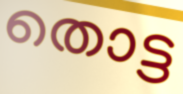
തൊട്ട